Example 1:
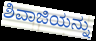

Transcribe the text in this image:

ಶಿವಾಜಿಯನ್ನು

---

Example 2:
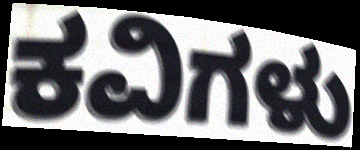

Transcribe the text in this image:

ಕವಿಗಳು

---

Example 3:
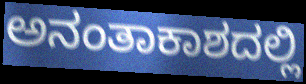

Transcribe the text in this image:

ಅನಂತಾಕಾಶದಲ್ಲಿ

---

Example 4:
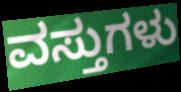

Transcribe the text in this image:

ವಸ್ತುಗಳು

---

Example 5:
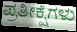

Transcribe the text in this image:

ಪ್ರತೀಕ್ಷೆಗಳು